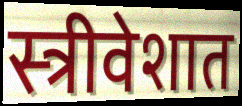
स्त्रीवेशात